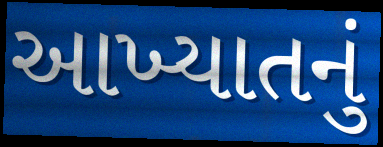
આખ્યાતનું